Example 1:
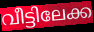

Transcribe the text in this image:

വീട്ടിലേക്ക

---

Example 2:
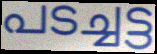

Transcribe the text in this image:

പടച്ചട്ട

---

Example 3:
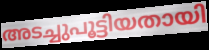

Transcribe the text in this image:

അടച്ചുപൂട്ടിയതായി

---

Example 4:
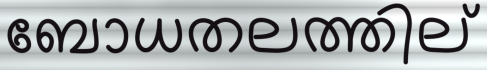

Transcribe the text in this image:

ബോധതലത്തില്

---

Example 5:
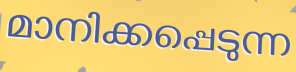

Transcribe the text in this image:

മാനിക്കപ്പെടുന്ന